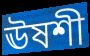
ঊষশী